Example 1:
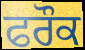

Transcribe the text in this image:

ਫਰੌਕ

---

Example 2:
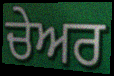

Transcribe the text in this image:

ਚੇਅਰ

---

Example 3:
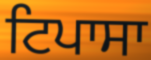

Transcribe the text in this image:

ਟਿਪਾਸਾ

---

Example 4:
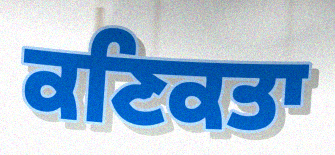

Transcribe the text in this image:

ਕਣਿਕਤਾ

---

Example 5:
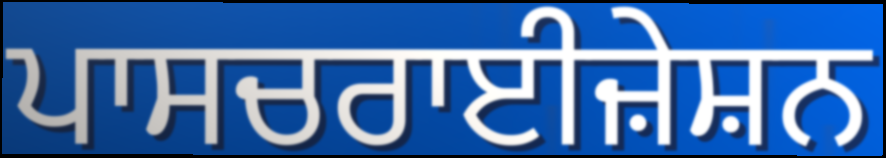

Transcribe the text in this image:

ਪਾਸਚਰਾਈਜ਼ੇਸ਼ਨ